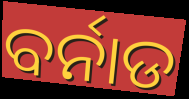
ବର୍ନାଡ